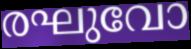
രഘുവോ